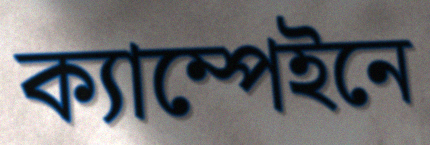
ক্যাম্পেইনে